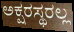
ಅಕ್ಷರಸ್ಥರಲ್ಲ